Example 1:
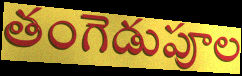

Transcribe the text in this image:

తంగెడుపూల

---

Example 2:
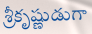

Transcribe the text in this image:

శ్రీకృష్ణుడుగా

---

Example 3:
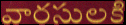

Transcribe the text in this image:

వారసులకి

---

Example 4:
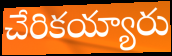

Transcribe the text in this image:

చేరికయ్యారు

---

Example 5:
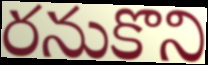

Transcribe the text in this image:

రనుకొని